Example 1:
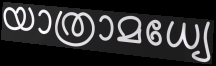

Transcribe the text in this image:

യാത്രാമധ്യേ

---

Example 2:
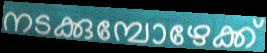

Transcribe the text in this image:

നടക്കുമ്പോഴേക്ക്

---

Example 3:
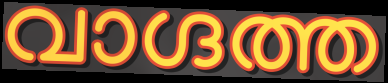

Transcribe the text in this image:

വാഗ്ദത്ത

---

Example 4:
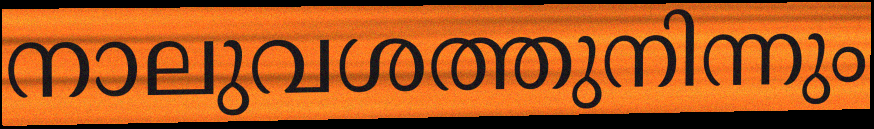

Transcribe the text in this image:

നാലുവശത്തുനിന്നും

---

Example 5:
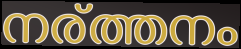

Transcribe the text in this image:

നര്ത്തനം